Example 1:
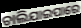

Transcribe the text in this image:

ଚାଲିଯାଇପାରେ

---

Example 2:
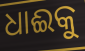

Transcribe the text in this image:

ଧାଈକୁ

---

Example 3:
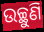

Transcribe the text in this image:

ଉଚ୍ଛୁଣି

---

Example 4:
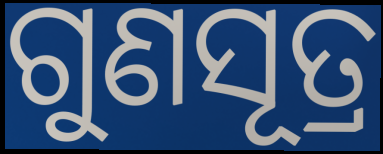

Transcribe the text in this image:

ଗୁଣସୂତ୍ର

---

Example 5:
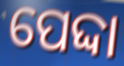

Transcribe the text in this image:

ପେଦ୍ଦା